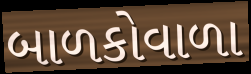
બાળકોવાળા